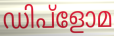
ഡിപ്ളോമ